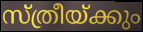
സ്ത്രീയ്ക്കും